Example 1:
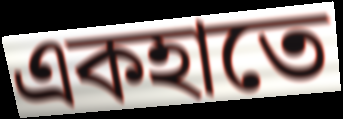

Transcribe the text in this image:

একহাতে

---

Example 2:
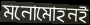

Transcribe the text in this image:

মনোমোহনই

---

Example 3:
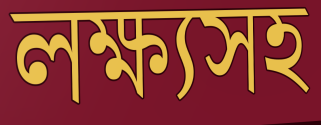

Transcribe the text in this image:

লক্ষ্যসহ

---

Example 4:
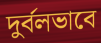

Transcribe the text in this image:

দুর্বলভাবে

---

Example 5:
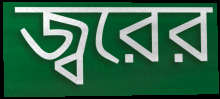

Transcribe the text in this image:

জ্বরের